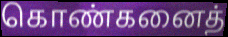
கொண்கனைத்